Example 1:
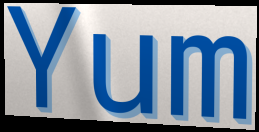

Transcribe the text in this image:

Yum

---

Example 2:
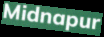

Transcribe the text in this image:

Midnapur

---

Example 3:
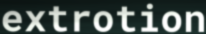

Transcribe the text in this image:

extrotion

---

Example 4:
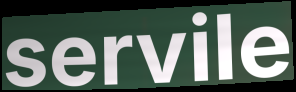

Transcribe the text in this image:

servile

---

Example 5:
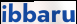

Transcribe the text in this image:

ibbaru